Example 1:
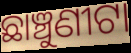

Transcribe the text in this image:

ଛାଞ୍ଚୁଣୀଟା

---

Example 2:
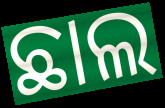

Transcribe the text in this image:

ଛାଲ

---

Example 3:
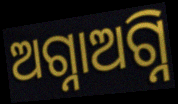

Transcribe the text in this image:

ଅଗ୍ନାଅଗ୍ନି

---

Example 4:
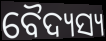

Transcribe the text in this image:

ବୈଦ୍ୟସ୍ୟ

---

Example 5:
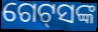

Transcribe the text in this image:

ଗେଟ୍‌ସଙ୍କ